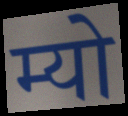
म्यो